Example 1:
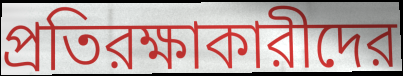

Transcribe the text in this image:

প্রতিরক্ষাকারীদের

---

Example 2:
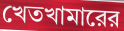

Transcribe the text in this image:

খেতখামারের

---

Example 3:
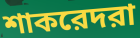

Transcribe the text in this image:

শাকরেদরা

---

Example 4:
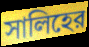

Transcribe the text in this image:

সালিহের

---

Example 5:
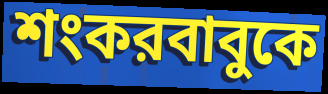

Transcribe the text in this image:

শংকরবাবুকে